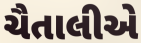
ચૈતાલીએ